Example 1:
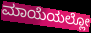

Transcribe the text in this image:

ಮಾಯೆಯಲ್ಲೋ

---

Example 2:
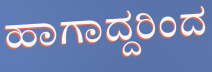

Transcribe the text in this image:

ಹಾಗಾದ್ದರಿಂದ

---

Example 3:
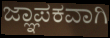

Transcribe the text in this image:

ಜ್ಞಾಪಕವಾಗಿ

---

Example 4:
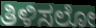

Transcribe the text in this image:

ತಿಳಿಸಲೋ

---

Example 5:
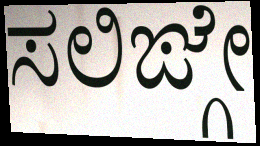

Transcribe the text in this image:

ಸಲಿಙ್ಗೇ